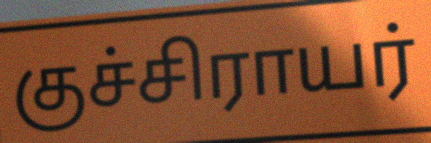
குச்சிராயர்